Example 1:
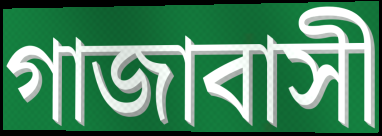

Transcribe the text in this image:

গাজাবাসী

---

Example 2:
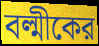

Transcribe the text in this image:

বল্মীকের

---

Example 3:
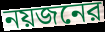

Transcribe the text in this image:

নয়জনের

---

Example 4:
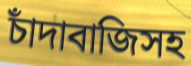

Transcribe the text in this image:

চাঁদাবাজিসহ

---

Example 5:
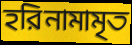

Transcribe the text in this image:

হরিনামামৃত